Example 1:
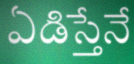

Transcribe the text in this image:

ఏడిస్తేనే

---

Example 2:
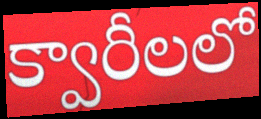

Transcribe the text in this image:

క్వారీలలో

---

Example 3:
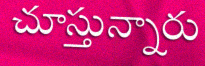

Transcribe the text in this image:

చూస్తున్నారు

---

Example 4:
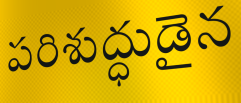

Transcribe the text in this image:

పరిశుద్ధుడైన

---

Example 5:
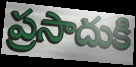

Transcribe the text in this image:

ప్రసాదుకి